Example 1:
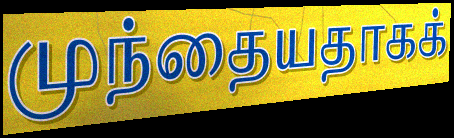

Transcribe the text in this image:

முந்தையதாகக்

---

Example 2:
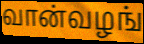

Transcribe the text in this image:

வான்வழங்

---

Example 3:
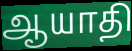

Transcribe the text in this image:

ஆயாதி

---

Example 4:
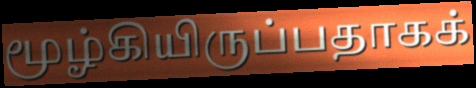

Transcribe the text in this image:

மூழ்கியிருப்பதாகக்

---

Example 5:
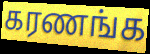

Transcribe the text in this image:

கரணங்க